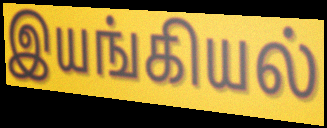
இயங்கியல்